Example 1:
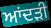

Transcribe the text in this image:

ਆਂਦੜੀ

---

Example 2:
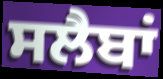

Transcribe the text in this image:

ਸਲੈਬਾਂ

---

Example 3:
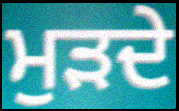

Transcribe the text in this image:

ਮੁਡ਼ਦੇ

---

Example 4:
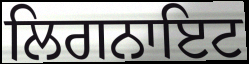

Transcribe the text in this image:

ਲਿਗਨਾਇਟ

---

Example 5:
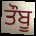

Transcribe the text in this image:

ਤੌਬੂ